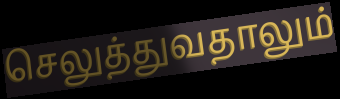
செலுத்துவதாலும்